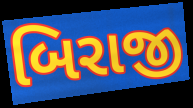
બિરાજી